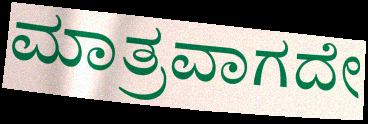
ಮಾತ್ರವಾಗದೇ